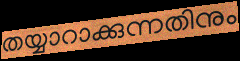
തയ്യാറാക്കുന്നതിനും